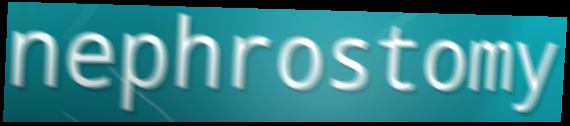
nephrostomy